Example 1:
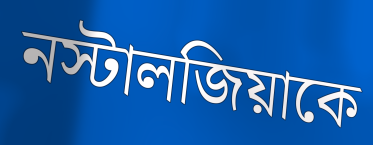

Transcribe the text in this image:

নস্টালজিয়াকে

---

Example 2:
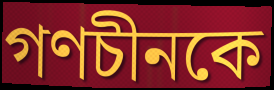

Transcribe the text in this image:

গণচীনকে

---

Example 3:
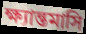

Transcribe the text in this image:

ক্ষ্যান্তমাসি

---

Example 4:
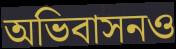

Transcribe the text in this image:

অভিবাসনও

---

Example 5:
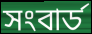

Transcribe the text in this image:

সংবার্ড